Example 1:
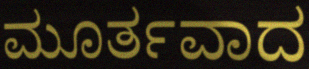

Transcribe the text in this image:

ಮೂರ್ತವಾದ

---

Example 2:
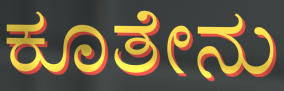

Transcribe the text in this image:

ಕೂತೇನು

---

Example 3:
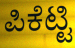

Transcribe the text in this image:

ಪಿಕೆಟ್ಟಿ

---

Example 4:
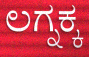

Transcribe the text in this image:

ಲಗ್ನಕ್ಕ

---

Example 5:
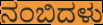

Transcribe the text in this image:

ನಂಬಿದಳು